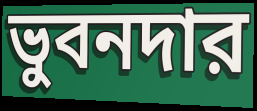
ভুবনদার